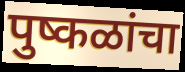
पुष्कळांचा